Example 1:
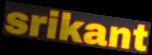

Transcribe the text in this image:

srikant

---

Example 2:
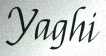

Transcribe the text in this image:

Yaghi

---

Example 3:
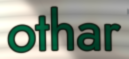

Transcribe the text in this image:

othar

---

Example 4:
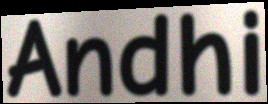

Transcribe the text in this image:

Andhi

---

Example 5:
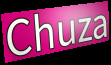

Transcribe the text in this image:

Chuza